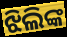
ଝିଲିଙ୍କ